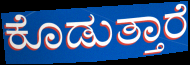
ಕೊಡುತ್ತಾರೆ